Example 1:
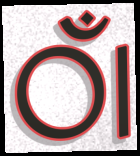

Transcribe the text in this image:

ଠାଁ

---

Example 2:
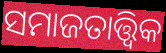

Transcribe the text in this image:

ସମାଜତାତ୍ତ୍ୱିକ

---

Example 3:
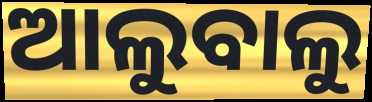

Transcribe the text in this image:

ଆଲୁବାଲୁ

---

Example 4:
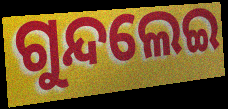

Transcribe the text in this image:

ଗୁନ୍ଦଲେଇ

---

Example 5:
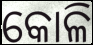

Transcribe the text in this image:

କୋଳି